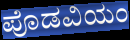
ಪೊಡವಿಯಂ